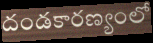
దండకారణ్యంలో